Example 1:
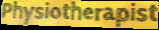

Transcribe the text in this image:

Physiotherapist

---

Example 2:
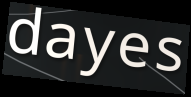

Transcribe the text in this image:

dayes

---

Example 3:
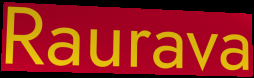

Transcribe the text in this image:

Raurava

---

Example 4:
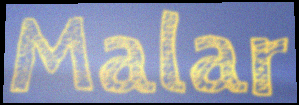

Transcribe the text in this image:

Malar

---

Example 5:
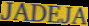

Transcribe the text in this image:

JADEJA